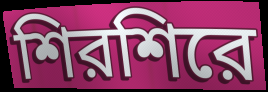
শিরশিরে